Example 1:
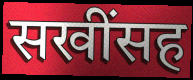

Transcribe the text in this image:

सखींसह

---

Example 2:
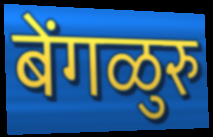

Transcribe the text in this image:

बेंगळुरु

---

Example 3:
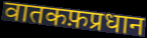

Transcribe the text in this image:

वातकफ़प्रधान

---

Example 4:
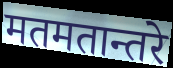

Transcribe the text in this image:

मतमतान्तरे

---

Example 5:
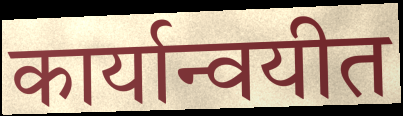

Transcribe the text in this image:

कार्यान्वयीत